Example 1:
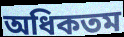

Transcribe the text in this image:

অধিকতম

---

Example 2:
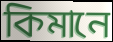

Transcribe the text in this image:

কিমানে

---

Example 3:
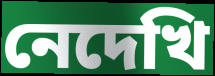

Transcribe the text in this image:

নেদেখি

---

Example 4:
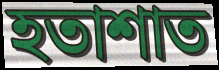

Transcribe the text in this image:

হতাশাত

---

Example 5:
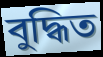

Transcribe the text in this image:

বুদ্ধিত